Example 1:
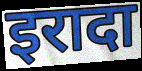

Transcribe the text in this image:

इरादा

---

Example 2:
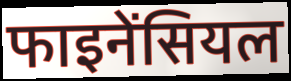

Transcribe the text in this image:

फाइनेंसियल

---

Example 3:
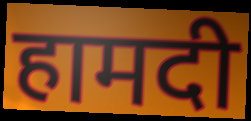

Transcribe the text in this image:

हामदी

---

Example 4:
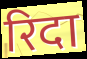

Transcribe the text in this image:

रिदा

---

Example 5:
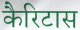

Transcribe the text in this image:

कैरिटास